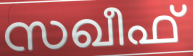
സഖീഫ്